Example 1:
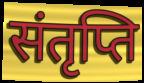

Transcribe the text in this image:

संतृप्ति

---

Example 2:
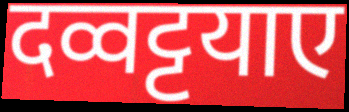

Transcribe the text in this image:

दव्वट्टयाए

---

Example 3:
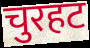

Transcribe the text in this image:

चुरहट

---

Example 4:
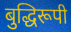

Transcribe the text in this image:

बुद्धिरूपी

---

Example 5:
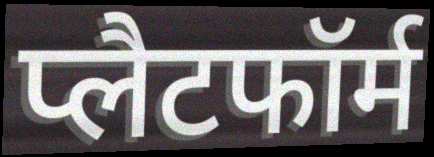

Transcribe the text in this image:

प्लैटफॉर्म